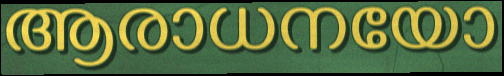
ആരാധനയോ